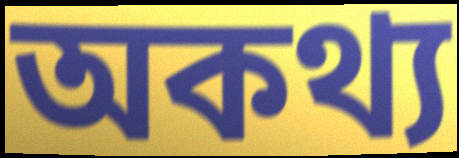
অকথ্য